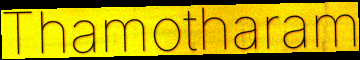
Thamotharam